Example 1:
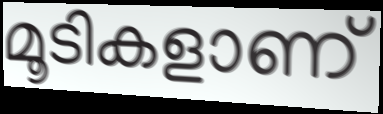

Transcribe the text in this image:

മൂടികളാണ്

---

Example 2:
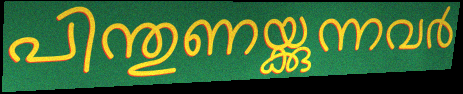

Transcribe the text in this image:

പിന്തുണയ്ക്കുന്നവർ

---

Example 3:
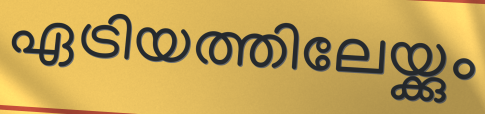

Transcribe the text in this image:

ഏട്രിയത്തിലേയ്ക്കും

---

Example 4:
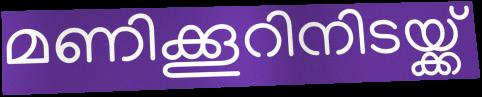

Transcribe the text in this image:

മണിക്കൂറിനിടയ്ക്ക്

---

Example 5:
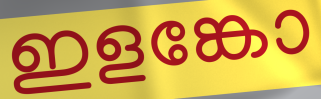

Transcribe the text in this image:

ഇളങ്കോ